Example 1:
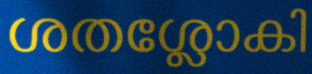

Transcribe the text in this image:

ശതശ്ലോകി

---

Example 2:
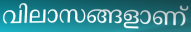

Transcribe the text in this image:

വിലാസങ്ങളാണ്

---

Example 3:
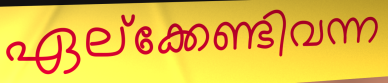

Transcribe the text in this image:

ഏല്ക്കേണ്ടിവന്ന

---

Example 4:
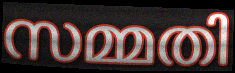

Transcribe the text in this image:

സമ്മതി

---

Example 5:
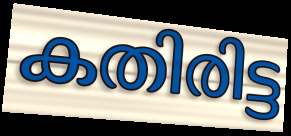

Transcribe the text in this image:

കതിരിട്ട